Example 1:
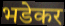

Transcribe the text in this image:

भडेकर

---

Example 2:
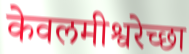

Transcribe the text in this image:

केवलमीश्वरेच्छा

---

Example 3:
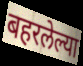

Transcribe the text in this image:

बहरलेल्या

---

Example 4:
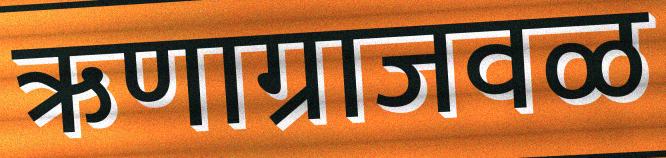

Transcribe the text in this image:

ऋणाग्राजवळ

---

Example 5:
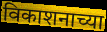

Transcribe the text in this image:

विकाशनाच्या